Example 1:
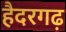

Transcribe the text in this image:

हैदरगढ़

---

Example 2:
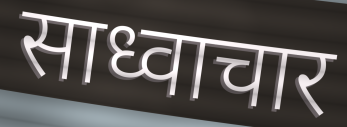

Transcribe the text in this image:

साध्वाचार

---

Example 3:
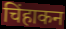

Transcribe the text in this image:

चिंहाकन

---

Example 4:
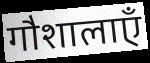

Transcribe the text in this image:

गौशालाएँ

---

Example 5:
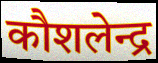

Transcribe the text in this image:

कौशलेन्द्र